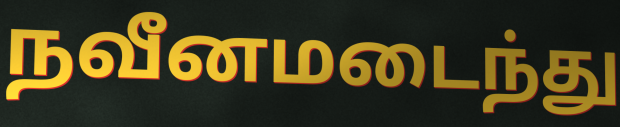
நவீனமடைந்து